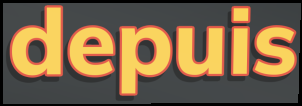
depuis